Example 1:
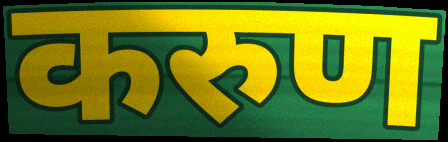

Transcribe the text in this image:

करुण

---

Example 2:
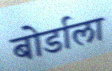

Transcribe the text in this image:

बोर्डाला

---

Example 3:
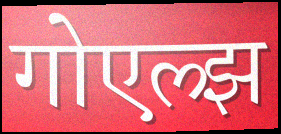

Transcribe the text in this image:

गोएल्झ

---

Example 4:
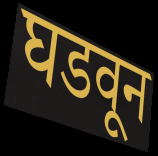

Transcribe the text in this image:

घडवून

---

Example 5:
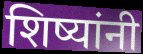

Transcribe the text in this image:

शिष्यांनी